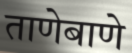
ताणेबाणे